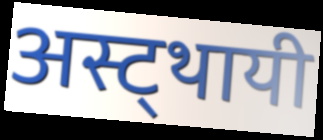
अस्ट्थायी